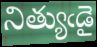
నిత్యుఁడై